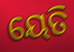
ୟେତି